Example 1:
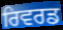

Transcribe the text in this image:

ਰਿਵਰਡ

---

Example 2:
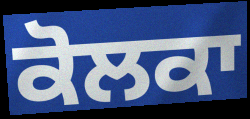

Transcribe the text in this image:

ਕੋਲਕਾ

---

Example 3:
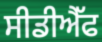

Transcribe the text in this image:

ਸੀਡੀਐੱਫ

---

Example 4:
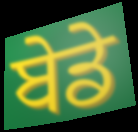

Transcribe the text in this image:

ਬੇਡੇ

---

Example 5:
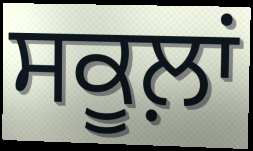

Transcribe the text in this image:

ਸਕੂਲ਼ਾਂ